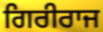
ਗਿਰੀਰਾਜ